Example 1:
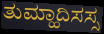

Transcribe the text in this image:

ತುಮ್ಹಾದಿಸಸ್ಸ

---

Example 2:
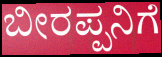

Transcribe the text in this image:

ಬೀರಪ್ಪನಿಗೆ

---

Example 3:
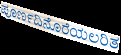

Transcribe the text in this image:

ಪೂರ್ಣದಿನೊರೆಯಲರಿತ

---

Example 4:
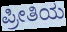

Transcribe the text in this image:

ಪ್ರೀತಿಯ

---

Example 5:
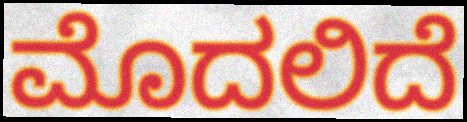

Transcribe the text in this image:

ಮೊದಲಿದೆ